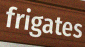
frigates